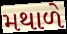
મથાળે